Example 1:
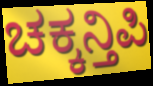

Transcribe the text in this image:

ಚಕ್ಕನ್ತಿಪಿ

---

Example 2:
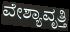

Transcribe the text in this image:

ವೇಶ್ಯಾವೃತ್ತಿ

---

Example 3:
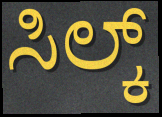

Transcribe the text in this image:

ಸಿಲ್ಕ್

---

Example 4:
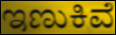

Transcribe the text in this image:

ಇಣುಕಿವೆ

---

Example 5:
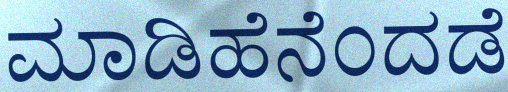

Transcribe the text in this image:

ಮಾಡಿಹೆನೆಂದಡೆ